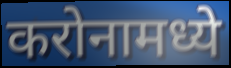
करोनामध्ये